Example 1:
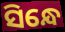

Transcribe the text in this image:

ସିନ୍ଧେ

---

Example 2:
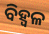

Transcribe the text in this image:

ବିହ୍ଵଳ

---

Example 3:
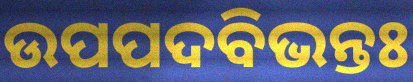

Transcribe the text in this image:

ଉପପଦବିଭନ୍ତଃ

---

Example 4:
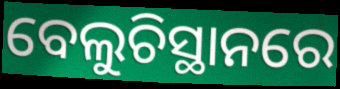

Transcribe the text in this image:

ବେଲୁଚିସ୍ଥାନରେ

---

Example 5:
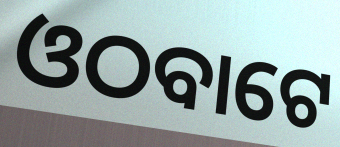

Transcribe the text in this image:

ଓଠବାଟେ